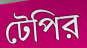
টেপির